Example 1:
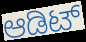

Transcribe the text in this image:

ಆಡಿಟ್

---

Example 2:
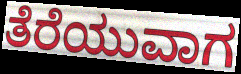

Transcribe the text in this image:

ತೆರೆಯುವಾಗ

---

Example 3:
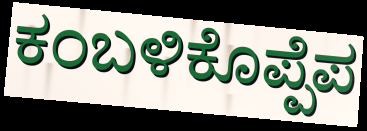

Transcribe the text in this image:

ಕಂಬಳಿಕೊಪ್ಪೆಪ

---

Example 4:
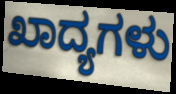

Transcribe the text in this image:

ಖಾದ್ಯಗಳು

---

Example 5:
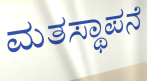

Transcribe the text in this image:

ಮತಸ್ಥಾಪನೆ